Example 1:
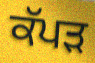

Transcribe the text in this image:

ਕੱਪੜ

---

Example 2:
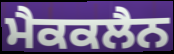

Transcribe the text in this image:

ਮੈਕਕਲੈਨ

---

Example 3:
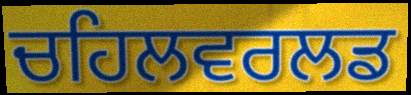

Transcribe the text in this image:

ਚਹਿਲਵਰਲਡ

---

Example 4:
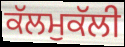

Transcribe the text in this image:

ਕੱਲਮੁਕੱਲੀ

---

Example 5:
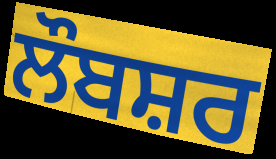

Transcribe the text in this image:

ਲੌਬਸ਼ਰ